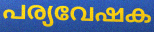
പര്യവേഷക